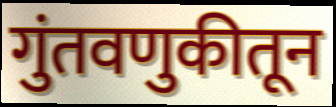
गुंतवणुकीतून